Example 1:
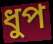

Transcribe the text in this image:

ধুপ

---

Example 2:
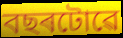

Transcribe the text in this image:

বছৰটোৱে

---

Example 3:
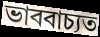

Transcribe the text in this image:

ভাববাচ্যত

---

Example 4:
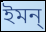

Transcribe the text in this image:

ইমন্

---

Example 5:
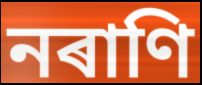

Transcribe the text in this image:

নৰাণি